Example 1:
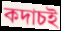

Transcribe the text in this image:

কদাচই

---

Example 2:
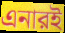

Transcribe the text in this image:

এনারই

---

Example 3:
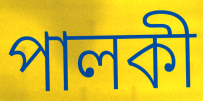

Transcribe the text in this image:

পালকী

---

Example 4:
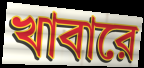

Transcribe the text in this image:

খাবারে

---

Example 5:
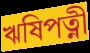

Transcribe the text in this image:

ঋষিপত্নী